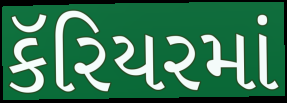
કૅરિયરમાં